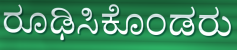
ರೂಢಿಸಿಕೊಂಡರು